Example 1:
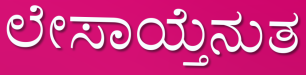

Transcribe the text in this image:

ಲೇಸಾಯ್ತೆನುತ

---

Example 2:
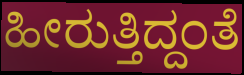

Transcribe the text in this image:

ಹೀರುತ್ತಿದ್ದಂತೆ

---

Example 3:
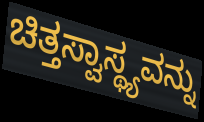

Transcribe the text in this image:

ಚಿತ್ತಸ್ವಾಸ್ಥ್ಯವನ್ನು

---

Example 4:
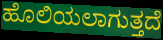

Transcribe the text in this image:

ಹೊಲಿಯಲಾಗುತ್ತದೆ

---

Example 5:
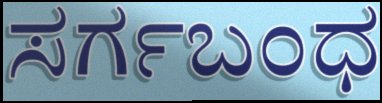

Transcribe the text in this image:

ಸರ್ಗಬಂಧ